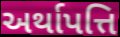
અર્થાપત્તિ